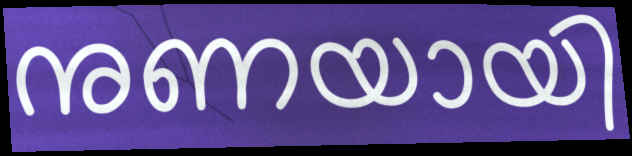
നുണയായി